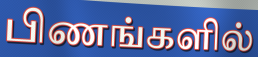
பிணங்களில்